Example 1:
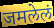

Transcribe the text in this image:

जमलेलं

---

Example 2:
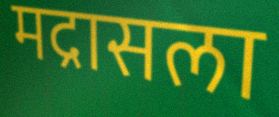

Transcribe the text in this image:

मद्रासला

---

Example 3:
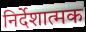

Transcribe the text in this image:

निर्देशात्मक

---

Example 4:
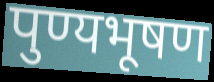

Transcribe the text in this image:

पुण्यभूषण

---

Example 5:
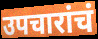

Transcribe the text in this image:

उपचारांचं